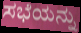
ಸಭೆಯನ್ನು